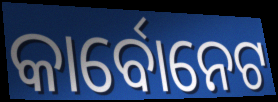
କାର୍ବୋନେଟ